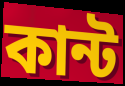
কান্ট